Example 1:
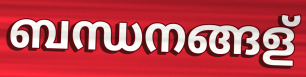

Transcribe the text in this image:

ബന്ധനങ്ങള്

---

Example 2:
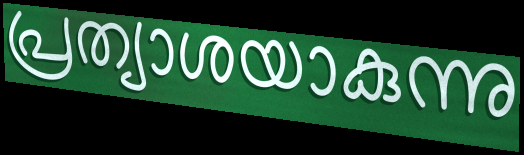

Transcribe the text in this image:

പ്രത്യാശയാകുന്നു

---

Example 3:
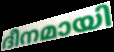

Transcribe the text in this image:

ദീനമായി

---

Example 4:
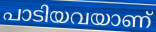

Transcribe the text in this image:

പാടിയവയാണ്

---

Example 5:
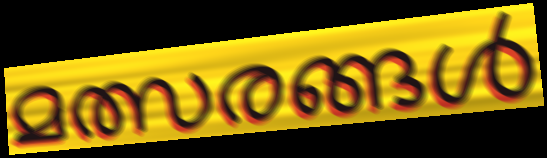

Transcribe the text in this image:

മത്സരങ്ങൾ